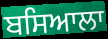
ਬਸਿਆਲਾ